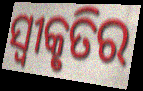
ସ୍ଵୀକୃତିର